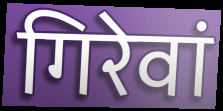
गिरेवां